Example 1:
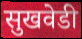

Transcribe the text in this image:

सुखवेडी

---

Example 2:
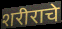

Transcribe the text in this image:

शरीराचे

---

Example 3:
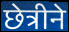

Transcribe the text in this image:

छेत्रीने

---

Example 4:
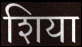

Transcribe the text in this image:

शिया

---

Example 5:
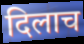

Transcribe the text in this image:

दिलाच